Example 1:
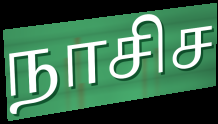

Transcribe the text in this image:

நாசிச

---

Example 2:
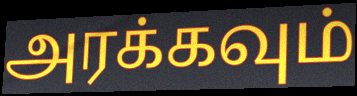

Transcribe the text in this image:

அரக்கவும்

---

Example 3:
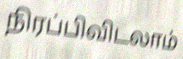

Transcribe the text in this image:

நிரப்பிவிடலாம்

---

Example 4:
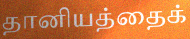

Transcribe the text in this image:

தானியத்தைக்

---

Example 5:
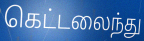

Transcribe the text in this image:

கெட்டலைந்து